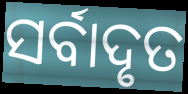
ସର୍ବାଦୃତ